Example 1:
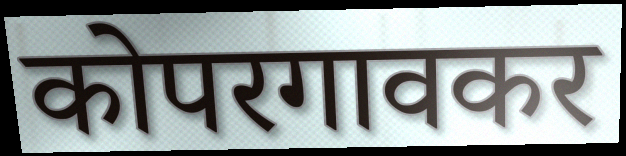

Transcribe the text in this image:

कोपरगावकर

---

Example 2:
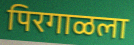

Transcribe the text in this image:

पिरगाळला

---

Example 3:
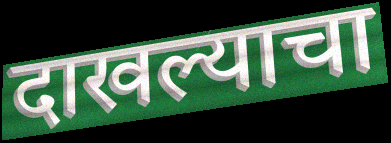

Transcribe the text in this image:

दाखल्याचा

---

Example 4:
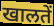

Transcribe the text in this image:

खालतें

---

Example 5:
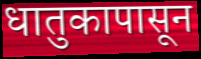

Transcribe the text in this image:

धातुकापासून